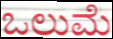
ಒಲುಮೆ